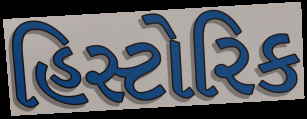
હિસ્ટોરિક